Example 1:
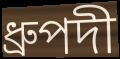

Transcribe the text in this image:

ধ্রুপদী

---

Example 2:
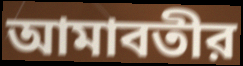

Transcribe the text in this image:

আমাবতীর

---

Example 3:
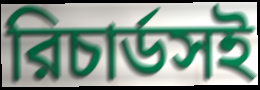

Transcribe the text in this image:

রিচার্ডসই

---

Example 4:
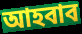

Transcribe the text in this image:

আহবাব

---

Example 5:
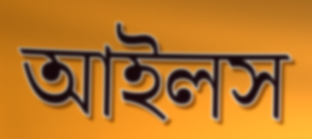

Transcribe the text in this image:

আইলস